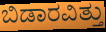
ಬಿಡಾರವಿತ್ತು